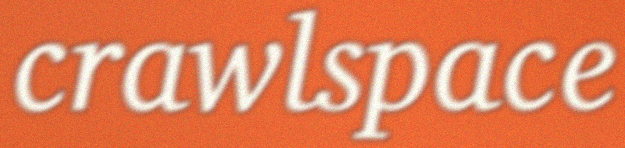
crawlspace